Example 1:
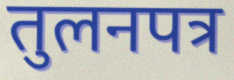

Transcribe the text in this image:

तुलनपत्र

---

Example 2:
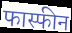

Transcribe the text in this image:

फास्फीन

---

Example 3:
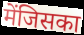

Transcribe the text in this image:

मेंजिसका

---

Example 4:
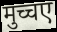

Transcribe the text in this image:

मुच्चए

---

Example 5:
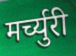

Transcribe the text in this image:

मर्च्युरी